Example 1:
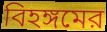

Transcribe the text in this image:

বিহঙ্গমের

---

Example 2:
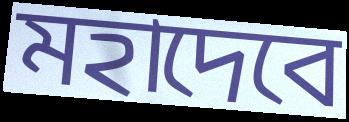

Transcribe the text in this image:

মহাদেবে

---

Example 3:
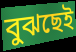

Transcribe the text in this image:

বুঝছেই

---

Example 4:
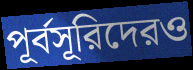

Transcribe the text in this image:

পূর্বসূরিদেরও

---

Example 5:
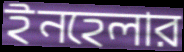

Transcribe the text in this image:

ইনহেলার